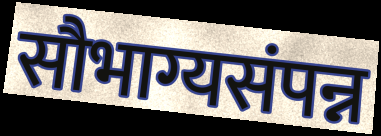
सौभाग्यसंपन्न